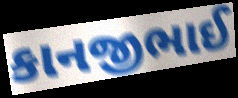
કાનજીભાઈ